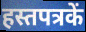
हस्तपत्रकें